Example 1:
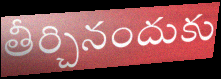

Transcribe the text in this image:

తీర్చినందుకు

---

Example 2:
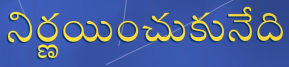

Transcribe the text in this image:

నిర్ణయించుకునేది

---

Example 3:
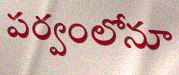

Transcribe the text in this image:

పర్వంలోనూ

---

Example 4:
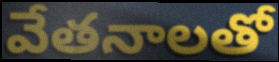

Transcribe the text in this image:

వేతనాలతో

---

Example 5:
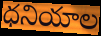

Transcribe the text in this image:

ధనియాల